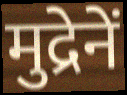
मुद्रेनें